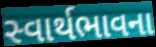
સ્વાર્થભાવના